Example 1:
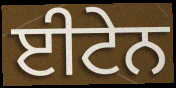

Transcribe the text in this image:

ਈਟੇਨ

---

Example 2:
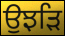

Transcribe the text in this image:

ਉਝੜਿ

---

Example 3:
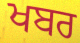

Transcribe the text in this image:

ਖਬਰ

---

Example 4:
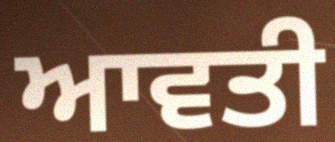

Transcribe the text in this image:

ਆਵਤੀ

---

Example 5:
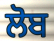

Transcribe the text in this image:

ਲੋਬ